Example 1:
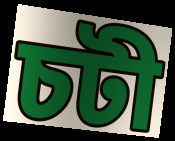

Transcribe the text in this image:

চটী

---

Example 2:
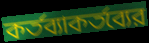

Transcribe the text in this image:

কর্তব্যাকর্তব্যের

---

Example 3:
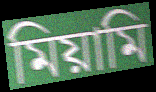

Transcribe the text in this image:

মিয়ামি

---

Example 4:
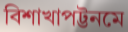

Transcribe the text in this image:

বিশাখাপট্টনমে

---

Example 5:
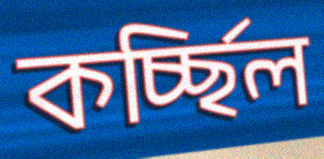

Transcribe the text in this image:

কর্চ্ছিল